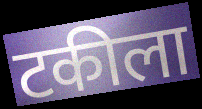
टकीला